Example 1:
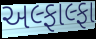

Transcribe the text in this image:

અલ્ફાલ્ફા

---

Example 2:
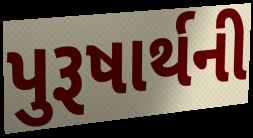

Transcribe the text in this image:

પુરૂષાર્થની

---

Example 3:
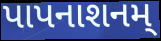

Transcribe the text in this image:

પાપનાશનમ્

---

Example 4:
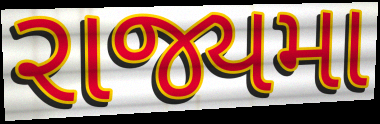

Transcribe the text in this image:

રાજ્યમા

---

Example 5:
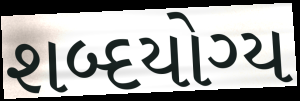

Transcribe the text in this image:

શબ્દયોગ્ય